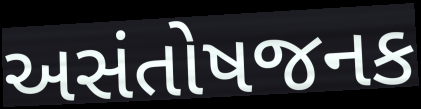
અસંતોષજનક